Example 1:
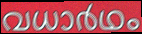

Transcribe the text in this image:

വധാർഥം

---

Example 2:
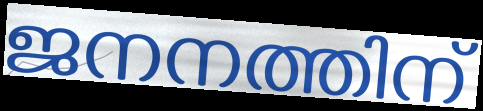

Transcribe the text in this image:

ജനനത്തിന്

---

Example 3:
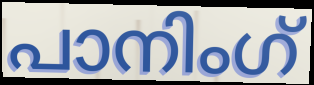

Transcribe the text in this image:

പാനിംഗ്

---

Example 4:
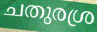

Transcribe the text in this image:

ചതുരശ്ര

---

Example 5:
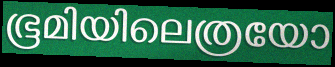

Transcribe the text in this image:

ഭൂമിയിലെത്രയോ